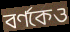
বর্ণকেও